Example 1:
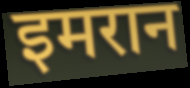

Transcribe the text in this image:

इमरान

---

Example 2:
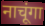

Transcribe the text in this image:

नाचूंगा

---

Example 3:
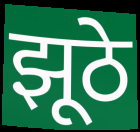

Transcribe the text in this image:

झूठे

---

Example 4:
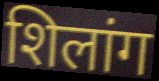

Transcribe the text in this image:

शिलांग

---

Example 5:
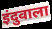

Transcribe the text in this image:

इंदुवाला